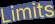
Limits